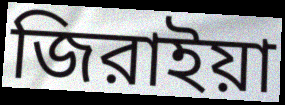
জিরাইয়া